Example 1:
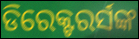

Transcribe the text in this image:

ଡିରେକ୍ଟରର୍ସଙ୍କ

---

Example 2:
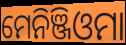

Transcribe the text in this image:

ମେନିଞ୍ଜିଓମା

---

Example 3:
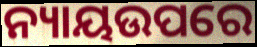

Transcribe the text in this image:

ନ୍ୟାୟଉପରେ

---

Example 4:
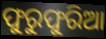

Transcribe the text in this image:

ଫୁରୁଫୁରିଆ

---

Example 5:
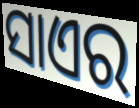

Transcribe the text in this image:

ସାଏର